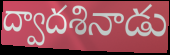
ద్వాదశినాడు